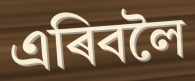
এৰিবলৈ